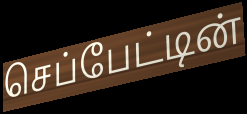
செப்பேட்டின்